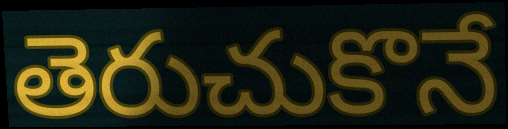
తెరుచుకొనే